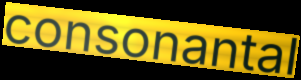
consonantal